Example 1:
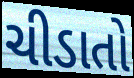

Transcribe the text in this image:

ચીડાતો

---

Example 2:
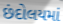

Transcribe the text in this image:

છંદોલયમાં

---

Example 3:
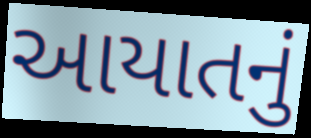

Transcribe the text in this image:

આયાતનું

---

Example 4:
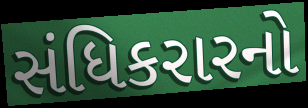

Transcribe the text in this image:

સંધિકરારનો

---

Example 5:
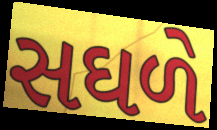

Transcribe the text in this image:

સઘળે